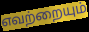
எவற்றையும்